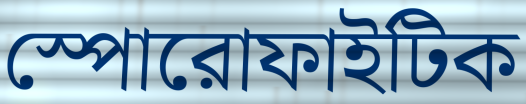
স্পোরোফাইটিক